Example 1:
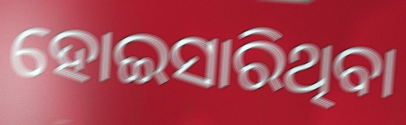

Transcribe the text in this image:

ହୋଇସାରିଥିବା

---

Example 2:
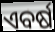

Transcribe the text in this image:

ଏବର୍ଷ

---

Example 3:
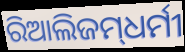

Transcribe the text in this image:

ରିଆଲିଜମ୍‌ଧର୍ମୀ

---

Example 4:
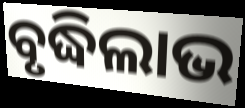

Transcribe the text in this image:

ବୃଦ୍ଧିଲାଭ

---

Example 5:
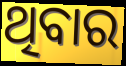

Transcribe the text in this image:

ଥିବାର